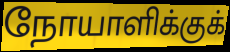
நோயாளிக்குக்